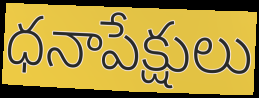
ధనాపేక్షులు